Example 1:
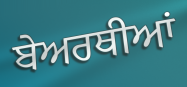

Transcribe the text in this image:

ਬੇਅਰਥੀਆਂ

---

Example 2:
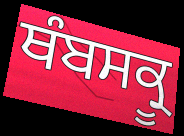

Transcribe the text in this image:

ਥੰਬਸਕ੍ਰੂ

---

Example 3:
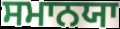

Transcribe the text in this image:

ਸਮਾਨਯਾ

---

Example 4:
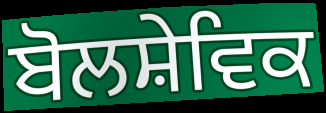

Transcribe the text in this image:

ਬੋਲਸ਼ੇਵਿਕ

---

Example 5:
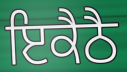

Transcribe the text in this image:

ਇਕੈਠੈ